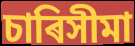
চাৰিসীমা